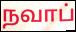
நவாப்